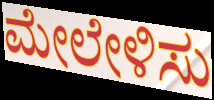
ಮೇಲೇಳಿಸು